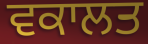
ਵਕਾਲਤ